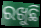
ରଖୁଛି